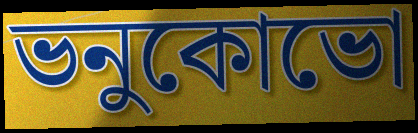
ভনুকোভো